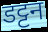
डट्टन